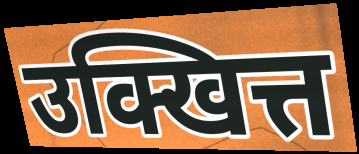
उक्खित्त